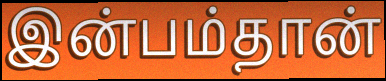
இன்பம்தான்